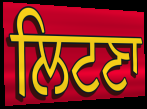
ਲਿਟਣਾ